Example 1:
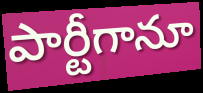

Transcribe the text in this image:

పార్టీగానూ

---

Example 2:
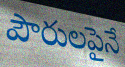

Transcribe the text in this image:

పౌరులపైనే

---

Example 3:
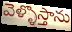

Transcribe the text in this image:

వెళ్ళొస్తాను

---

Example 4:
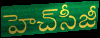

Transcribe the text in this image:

హెచ్‌సీజీ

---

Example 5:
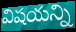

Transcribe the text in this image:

విషయన్ని